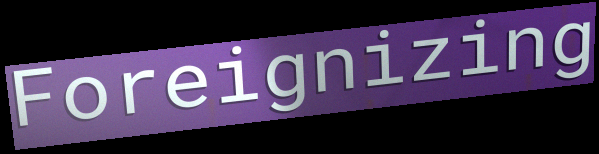
Foreignizing